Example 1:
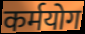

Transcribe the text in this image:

कर्मयोग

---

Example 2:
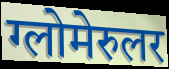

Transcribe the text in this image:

ग्लोमेरुलर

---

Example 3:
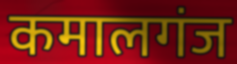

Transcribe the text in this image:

कमालगंज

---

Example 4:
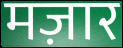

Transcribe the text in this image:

मज़ार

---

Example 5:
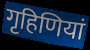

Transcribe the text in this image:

गृहिणियां